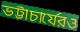
ভট্টাচার্যেরও